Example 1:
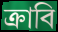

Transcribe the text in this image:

ক্রাবি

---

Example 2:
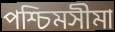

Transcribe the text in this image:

পশ্চিমসীমা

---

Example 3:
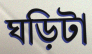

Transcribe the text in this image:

ঘড়িটা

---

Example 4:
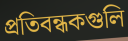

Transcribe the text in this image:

প্রতিবন্ধকগুলি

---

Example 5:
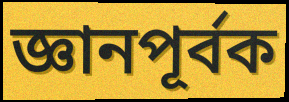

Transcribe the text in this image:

জ্ঞানপূর্বক